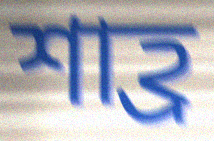
শাহ্র